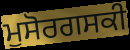
ਮੁਸੋਰਗਸਕੀ